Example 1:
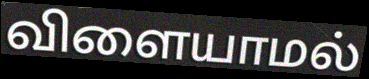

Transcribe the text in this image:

விளையாமல்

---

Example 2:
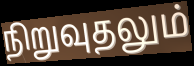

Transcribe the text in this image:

நிறுவுதலும்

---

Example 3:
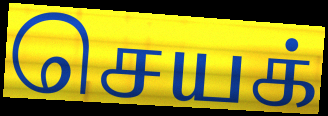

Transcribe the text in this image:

செயக்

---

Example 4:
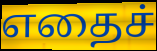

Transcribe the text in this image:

எதைச்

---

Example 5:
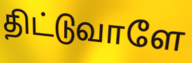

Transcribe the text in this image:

திட்டுவாளே